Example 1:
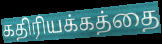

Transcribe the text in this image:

கதிரியக்கத்தை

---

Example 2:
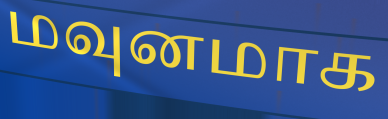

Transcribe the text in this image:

மவுனமாக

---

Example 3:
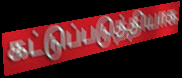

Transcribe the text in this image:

கட்டுப்படுத்தியாக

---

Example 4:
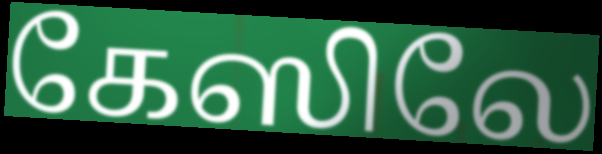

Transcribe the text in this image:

கேஸிலே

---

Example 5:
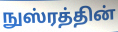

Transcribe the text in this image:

நுஸ்ரத்தின்